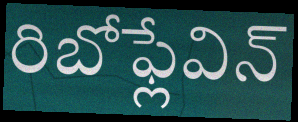
రిబోఫ్లేవిన్